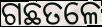
ଗଛତଳେ